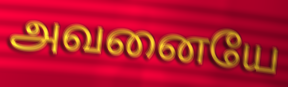
அவனையே